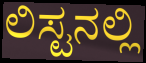
ಲಿಸ್ಟನಲ್ಲಿ